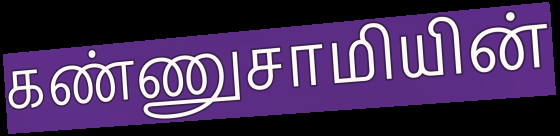
கண்ணுசாமியின்